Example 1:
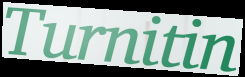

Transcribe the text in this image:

Turnitin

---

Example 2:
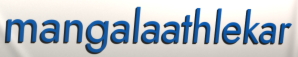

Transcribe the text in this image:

mangalaathlekar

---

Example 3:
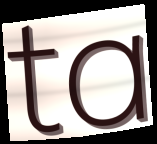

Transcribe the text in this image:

ta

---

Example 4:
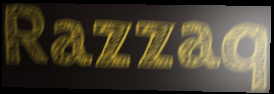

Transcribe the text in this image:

Razzaq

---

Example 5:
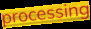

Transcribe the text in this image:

processing